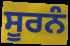
ਸੂਰਨੰ